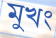
মুখং